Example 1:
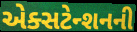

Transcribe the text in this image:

એક્સટેન્શનની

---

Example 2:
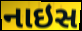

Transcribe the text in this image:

નાઇસ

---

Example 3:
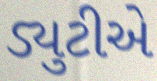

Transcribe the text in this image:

ડ્યુટીએ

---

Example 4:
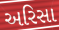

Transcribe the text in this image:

અરિસા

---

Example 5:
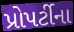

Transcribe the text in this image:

પ્રોપર્ટીના